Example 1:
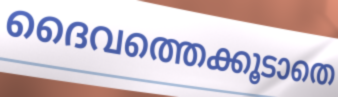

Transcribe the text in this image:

ദൈവത്തെക്കൂടാതെ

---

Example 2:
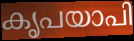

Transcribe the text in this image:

കൃപയാപി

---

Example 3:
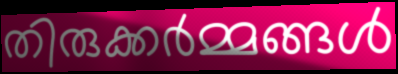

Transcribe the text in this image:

തിരുക്കർമ്മങ്ങൾ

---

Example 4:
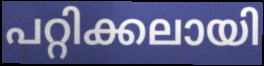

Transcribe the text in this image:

പറ്റിക്കലായി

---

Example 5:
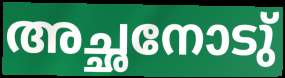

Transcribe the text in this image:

അച്ഛനോടു്